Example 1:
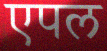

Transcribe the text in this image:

एपल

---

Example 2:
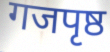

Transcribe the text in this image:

गजपृष्ठ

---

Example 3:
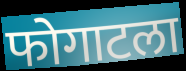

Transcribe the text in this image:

फोगाटला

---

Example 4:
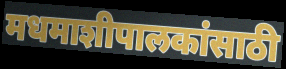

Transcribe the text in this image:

मधमाशीपालकांसाठी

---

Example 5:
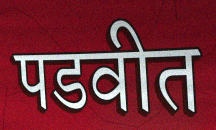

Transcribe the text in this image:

पडवीत